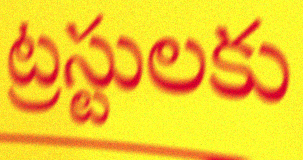
ట్రస్టులకు